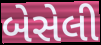
બેસેલી